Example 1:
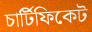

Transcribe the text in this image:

চাৰ্টিফিকেট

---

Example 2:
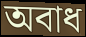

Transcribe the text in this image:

অবাধ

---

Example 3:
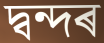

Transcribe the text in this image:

দ্বন্দৰ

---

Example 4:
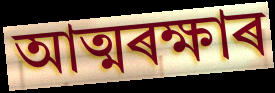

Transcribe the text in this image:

আত্মৰক্ষাৰ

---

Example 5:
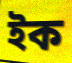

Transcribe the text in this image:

ইক